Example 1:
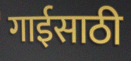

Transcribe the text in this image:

गाईसाठी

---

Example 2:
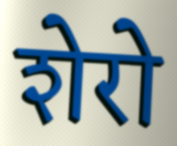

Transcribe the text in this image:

शेरो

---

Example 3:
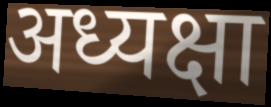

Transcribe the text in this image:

अध्यक्षा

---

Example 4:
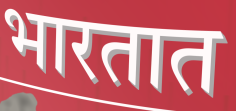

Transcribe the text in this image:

भारतात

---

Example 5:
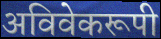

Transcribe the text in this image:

अविवेकरूपी